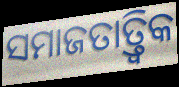
ସମାଜତାତ୍ତ୍ୱିକ